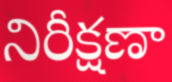
నిరీక్షణా